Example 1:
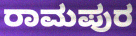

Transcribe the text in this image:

ರಾಮಪುರ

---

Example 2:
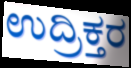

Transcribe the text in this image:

ಉದ್ರಿಕ್ತರ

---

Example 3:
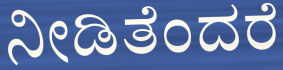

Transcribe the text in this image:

ನೀಡಿತೆಂದರೆ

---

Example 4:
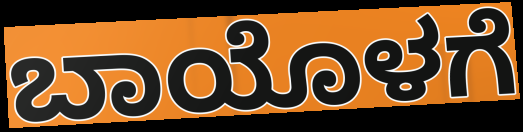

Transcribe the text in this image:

ಬಾಯೊಳಗೆ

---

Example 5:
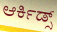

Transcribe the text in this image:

ಆರ್ಕಿಡ್ಸ್